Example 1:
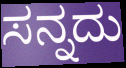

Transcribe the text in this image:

ಸನ್ನದು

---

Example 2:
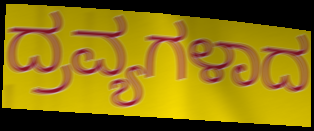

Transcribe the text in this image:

ದ್ರವ್ಯಗಳಾದ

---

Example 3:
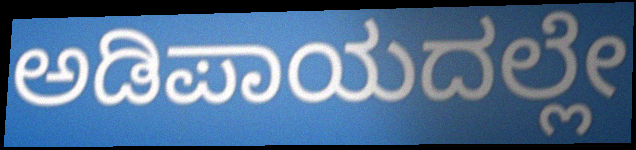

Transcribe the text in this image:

ಅಡಿಪಾಯದಲ್ಲೇ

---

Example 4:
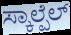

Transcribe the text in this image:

ಸ್ಕಾಲ್ಪೆಲ್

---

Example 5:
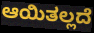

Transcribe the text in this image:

ಆಯಿತಲ್ಲದೆ